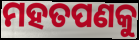
ମହତପଣକୁ